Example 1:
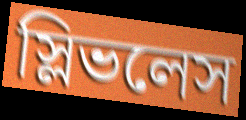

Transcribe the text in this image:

স্লিভলেস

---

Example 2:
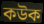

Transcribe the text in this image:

কউক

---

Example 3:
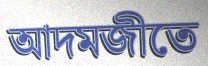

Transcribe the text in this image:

আদমজীতে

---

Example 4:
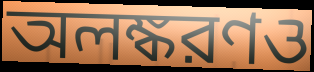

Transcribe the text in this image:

অলঙ্করণও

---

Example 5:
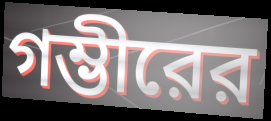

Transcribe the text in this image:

গম্ভীরের